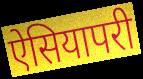
ऐसियापरी